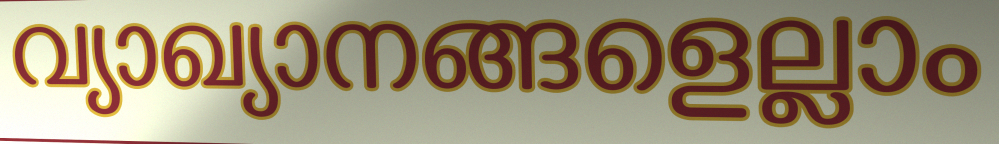
വ്യാഖ്യാനങ്ങളെല്ലാം